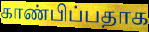
காண்பிப்பதாக